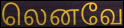
லெனவே